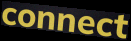
connect